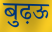
बुढ़ऊ